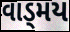
વાડ્મય